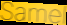
Samel